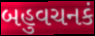
બહુવચનકં